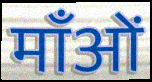
माँओं